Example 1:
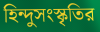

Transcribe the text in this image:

হিন্দুসংস্কৃতির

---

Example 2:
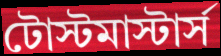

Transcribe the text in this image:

টোস্টমাস্টার্স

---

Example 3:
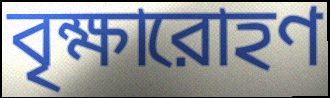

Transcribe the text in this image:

বৃক্ষারোহণ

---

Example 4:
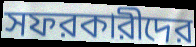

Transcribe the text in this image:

সফরকারীদের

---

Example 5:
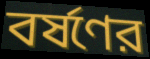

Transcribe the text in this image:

বর্ষণের